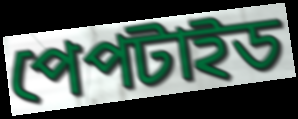
পেপটাইড